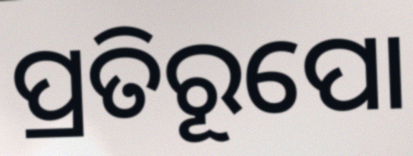
ପ୍ରତିରୂପୋ